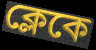
ক্লেকে